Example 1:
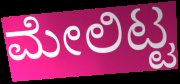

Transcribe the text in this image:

ಮೇಲಿಟ್ಟ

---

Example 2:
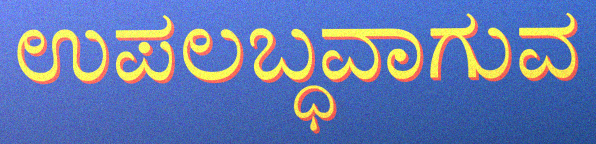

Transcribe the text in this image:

ಉಪಲಬ್ಧವಾಗುವ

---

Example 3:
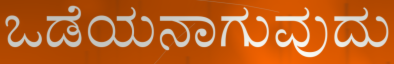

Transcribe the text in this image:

ಒಡೆಯನಾಗುವುದು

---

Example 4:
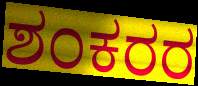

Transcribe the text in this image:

ಶಂಕರರ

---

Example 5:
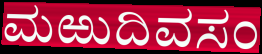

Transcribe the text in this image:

ಮಱುದಿವಸಂ